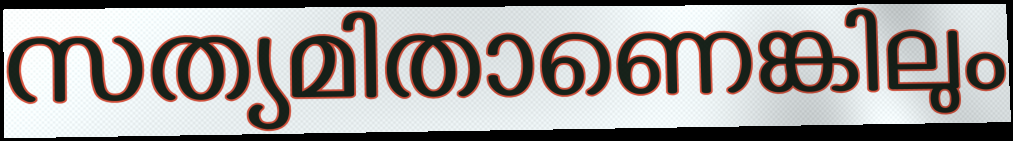
സത്യമിതാണെങ്കിലും